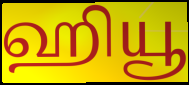
ஹியூ